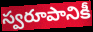
స్వరూపానికీ